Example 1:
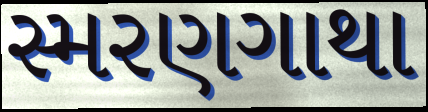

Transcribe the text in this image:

સ્મરણગાથા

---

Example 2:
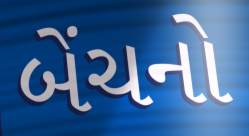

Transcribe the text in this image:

બેંચનો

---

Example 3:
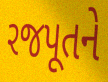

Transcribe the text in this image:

રજપૂતને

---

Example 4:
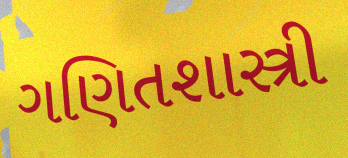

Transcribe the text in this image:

ગણિતશાસ્ત્રી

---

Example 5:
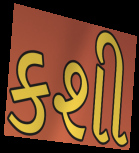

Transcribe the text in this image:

કશી